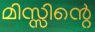
മിസ്സിന്റെ